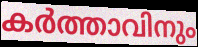
കർത്താവിനും